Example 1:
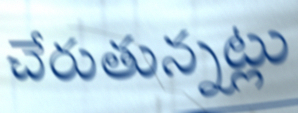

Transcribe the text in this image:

చేరుతున్నట్లు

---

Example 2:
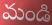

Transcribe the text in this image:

మండి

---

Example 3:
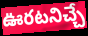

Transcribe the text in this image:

ఊరటనిచ్చే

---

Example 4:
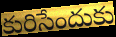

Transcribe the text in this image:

కురిసేందుకు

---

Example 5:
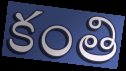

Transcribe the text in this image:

కంతి